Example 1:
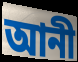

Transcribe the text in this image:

আনী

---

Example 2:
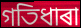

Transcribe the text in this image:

গতিধাৰা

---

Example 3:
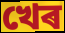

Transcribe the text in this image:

খেৰ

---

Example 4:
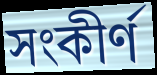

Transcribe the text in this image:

সংকীৰ্ণ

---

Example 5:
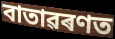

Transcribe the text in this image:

বাতাৱৰণত